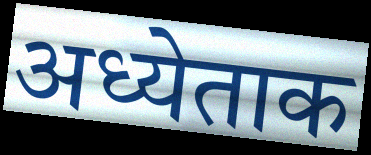
अध्येताक